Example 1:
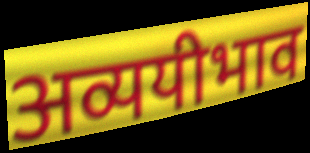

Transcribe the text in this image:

अव्ययीभाव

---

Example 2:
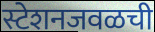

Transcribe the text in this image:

स्टेशनजवळची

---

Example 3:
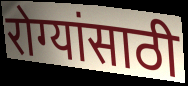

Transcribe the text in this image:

रोग्यांसाठी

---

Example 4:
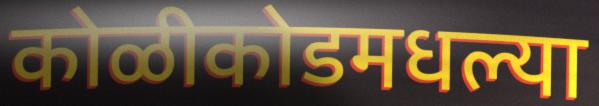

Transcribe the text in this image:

कोळीकोडमधल्या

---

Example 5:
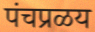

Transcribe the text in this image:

पंचप्रळय